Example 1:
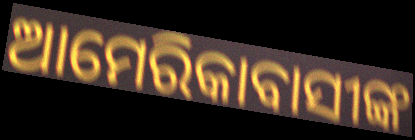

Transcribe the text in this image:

ଆମେରିକାବାସୀଙ୍କ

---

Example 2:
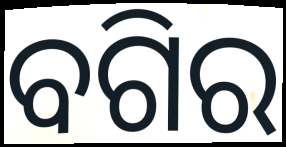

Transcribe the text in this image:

ବଗିର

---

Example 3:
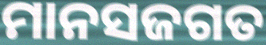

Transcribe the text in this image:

ମାନସଜଗତ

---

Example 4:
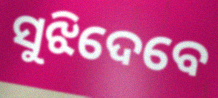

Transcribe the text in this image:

ସୁଝିଦେବେ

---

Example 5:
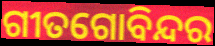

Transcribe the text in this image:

ଗୀତଗୋବିନ୍ଦର